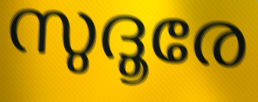
സുദൂരേ